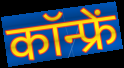
कॉन्फ्रें